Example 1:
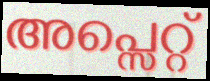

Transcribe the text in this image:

അപ്സെറ്റ്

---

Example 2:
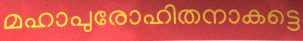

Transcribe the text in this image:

മഹാപുരോഹിതനാകട്ടെ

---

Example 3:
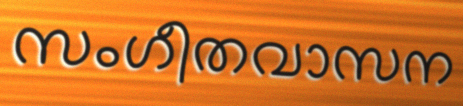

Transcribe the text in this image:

സംഗീതവാസന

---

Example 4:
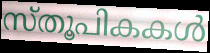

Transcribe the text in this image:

സ്തൂപികകൾ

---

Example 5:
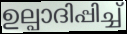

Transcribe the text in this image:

ഉല്പാദിപ്പിച്ച്